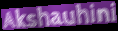
Akshauhini